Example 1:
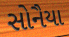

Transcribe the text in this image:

સોનૈયા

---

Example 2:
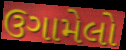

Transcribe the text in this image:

ઉગામેલો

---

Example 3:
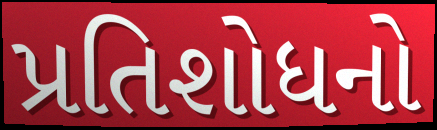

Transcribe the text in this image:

પ્રતિશોધનો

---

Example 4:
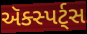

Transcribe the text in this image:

ઍક્સ્પર્ટ્સ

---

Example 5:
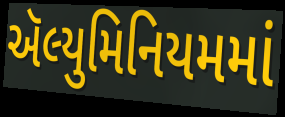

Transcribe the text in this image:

ઍલ્યુમિનિયમમાં